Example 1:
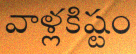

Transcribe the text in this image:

వాళ్లకిష్టం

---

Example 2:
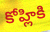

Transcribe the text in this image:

కోహ్లికి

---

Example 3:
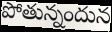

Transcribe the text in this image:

పోతున్నందున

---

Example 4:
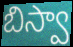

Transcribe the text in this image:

బిస్వా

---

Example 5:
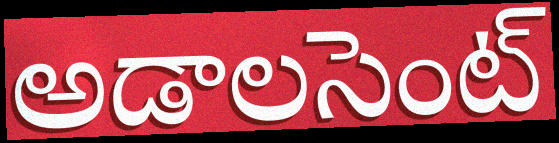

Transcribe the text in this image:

అడాలసెంట్